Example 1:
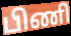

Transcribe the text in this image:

பிணி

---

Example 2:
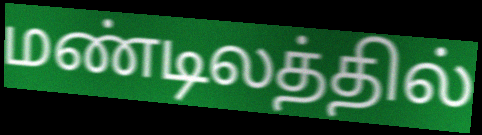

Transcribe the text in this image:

மண்டிலத்தில்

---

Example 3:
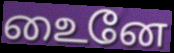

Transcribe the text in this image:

உைனே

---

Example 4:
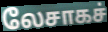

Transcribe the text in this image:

லேசாகச்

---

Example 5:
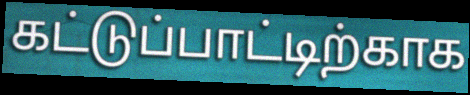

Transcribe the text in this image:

கட்டுப்பாட்டிற்காக